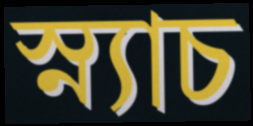
স্ন্যাচ